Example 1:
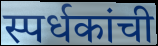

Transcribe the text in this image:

स्पर्धकांची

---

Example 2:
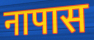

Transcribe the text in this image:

नापास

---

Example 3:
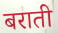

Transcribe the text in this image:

बराती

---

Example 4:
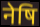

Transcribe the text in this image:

नेषि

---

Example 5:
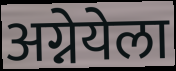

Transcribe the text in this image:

अग्नेयेला